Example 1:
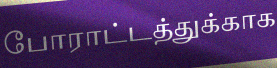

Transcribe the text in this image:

போராட்டத்துக்காக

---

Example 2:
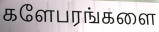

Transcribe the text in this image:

களேபரங்களை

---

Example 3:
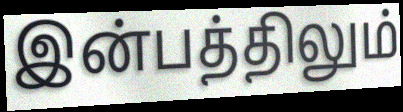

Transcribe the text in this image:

இன்பத்திலும்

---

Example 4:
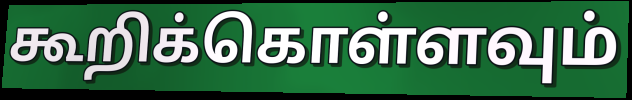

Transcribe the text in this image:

கூறிக்கொள்ளவும்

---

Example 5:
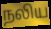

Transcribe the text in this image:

நலிய